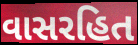
વાસરહિત